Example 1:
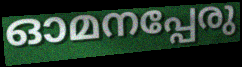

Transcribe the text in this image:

ഓമനപ്പേരു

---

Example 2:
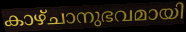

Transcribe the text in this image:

കാഴ്ചാനുഭവമായി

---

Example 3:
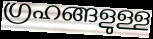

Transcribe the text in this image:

ഗ്രഹങ്ങളുള്ള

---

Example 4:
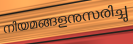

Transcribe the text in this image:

നിയമങ്ങളനുസരിച്ചു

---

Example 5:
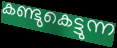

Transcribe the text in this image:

കണ്ടുകെട്ടുന്ന